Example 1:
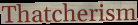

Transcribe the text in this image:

Thatcherism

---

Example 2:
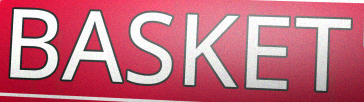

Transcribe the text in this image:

BASKET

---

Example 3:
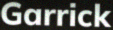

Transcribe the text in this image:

Garrick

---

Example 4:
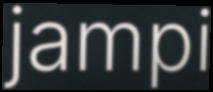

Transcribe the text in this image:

jampi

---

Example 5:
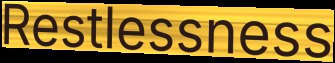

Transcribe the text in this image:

Restlessness